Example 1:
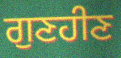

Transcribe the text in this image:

ਗੁਣਹੀਣ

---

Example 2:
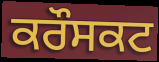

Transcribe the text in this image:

ਕਰੌਸਕਟ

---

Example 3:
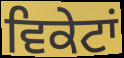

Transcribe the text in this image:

ਵਿਕੇਟਾਂ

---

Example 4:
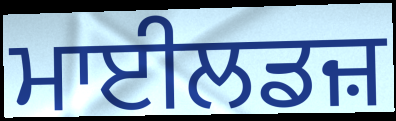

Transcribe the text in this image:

ਮਾਈਲਡਜ਼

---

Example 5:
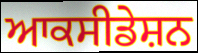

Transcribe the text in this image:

ਆਕਸੀਡੇਸ਼ਨ